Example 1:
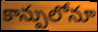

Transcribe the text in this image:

కాన్పులోనూ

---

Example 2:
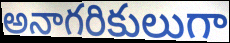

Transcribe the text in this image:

అనాగరికులుగా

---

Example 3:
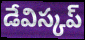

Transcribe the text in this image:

డేవిస్కప్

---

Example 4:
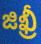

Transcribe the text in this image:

జిఖ్రీ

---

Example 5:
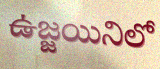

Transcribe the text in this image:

ఉజ్జయినిలో